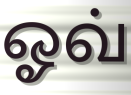
ஓவ்